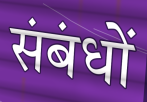
संबंधों